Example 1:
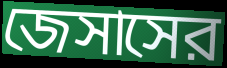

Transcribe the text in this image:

জেসাসের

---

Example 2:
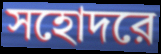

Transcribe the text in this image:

সহোদরে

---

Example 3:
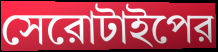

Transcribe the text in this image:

সেরোটাইপের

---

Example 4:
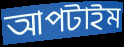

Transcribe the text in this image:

আপটাইম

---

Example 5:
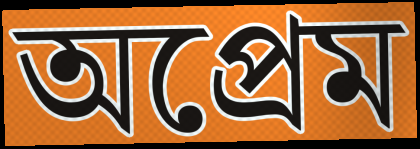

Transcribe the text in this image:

অপ্রেম